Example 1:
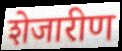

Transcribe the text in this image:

शेजारीण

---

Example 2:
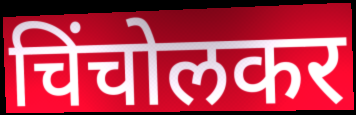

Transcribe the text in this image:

चिंचोलकर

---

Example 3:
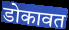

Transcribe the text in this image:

डोकावत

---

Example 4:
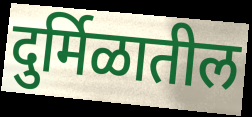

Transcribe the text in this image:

दुर्मिळातील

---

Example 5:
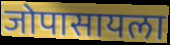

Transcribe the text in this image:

जोपासायला